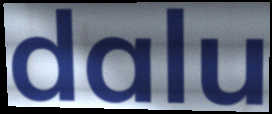
dalu